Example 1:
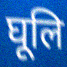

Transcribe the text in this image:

घूलि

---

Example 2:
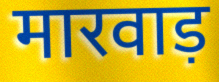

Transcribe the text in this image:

मारवाड़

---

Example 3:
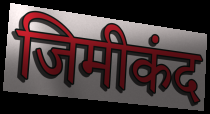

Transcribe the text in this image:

जिमीकंद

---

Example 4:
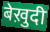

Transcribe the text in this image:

बेख़ुदी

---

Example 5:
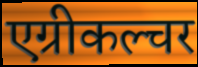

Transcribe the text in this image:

एग्रीकल्चर